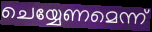
ചെയ്യേണമെന്ന്